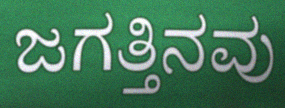
ಜಗತ್ತಿನವು